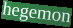
hegemon